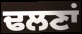
ਢਲਣਾਂ